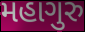
મહાગુરુ